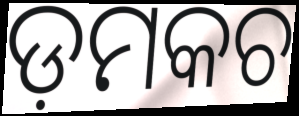
ଡ଼ମକଚ